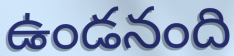
ఉండనంది